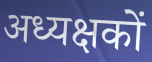
अध्यक्षकों